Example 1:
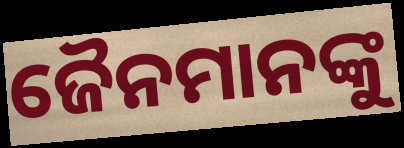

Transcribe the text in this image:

ଜୈନମାନଙ୍କୁ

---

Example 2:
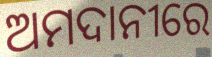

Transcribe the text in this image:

ଅମଦାନୀରେ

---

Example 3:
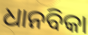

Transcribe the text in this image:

ଧାନବିକା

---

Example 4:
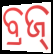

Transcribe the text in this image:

ବ୍ରଜ୍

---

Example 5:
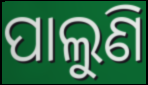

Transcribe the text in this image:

ପାଲୁଣି